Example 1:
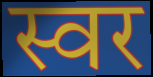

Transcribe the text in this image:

स्वर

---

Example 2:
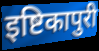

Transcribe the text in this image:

इष्टिकापुरी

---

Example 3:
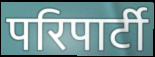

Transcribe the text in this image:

परिपार्टी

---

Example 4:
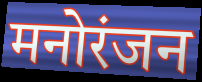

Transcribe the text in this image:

मनोरंजन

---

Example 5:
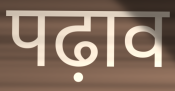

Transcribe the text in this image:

पढ़ाव